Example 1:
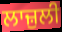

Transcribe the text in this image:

ਲਾਜ਼ੁਲੀ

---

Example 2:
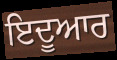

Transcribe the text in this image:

ਇਦੂਆਰ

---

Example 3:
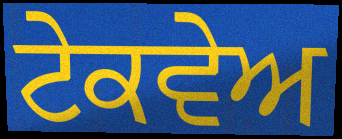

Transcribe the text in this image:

ਟੇਕਵੇਅ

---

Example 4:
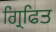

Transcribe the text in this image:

ਗ੍ਰਿਫਿਤ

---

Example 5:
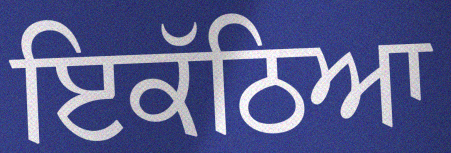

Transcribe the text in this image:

ਇਕੱਠਿਆ